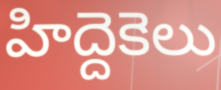
హిద్దెకెలు